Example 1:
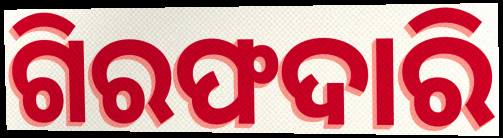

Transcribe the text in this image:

ଗିରଫଦାରି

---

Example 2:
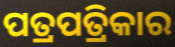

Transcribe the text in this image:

ପତ୍ରପତ୍ରିକାର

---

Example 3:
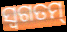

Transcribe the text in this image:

ସ୍ୱଗତମ୍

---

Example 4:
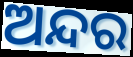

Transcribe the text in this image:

ଅନ୍ଦର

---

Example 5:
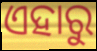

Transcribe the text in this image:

ଏହାରୁ